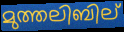
മുത്തലിബില്